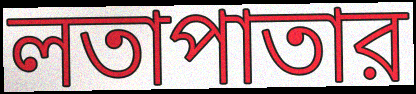
লতাপাতার